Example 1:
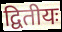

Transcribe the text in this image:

द्वितीयः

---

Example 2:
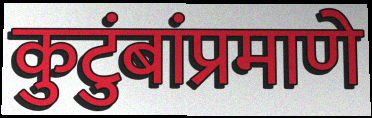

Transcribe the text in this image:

कुटुंबांप्रमाणे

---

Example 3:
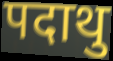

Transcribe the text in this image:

पदाथु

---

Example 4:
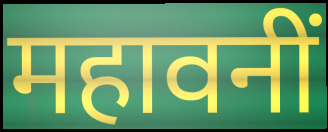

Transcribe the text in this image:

महावनीं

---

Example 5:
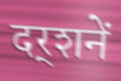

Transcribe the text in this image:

दर्शनें